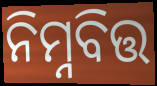
ନିମ୍ନବିତ୍ତ